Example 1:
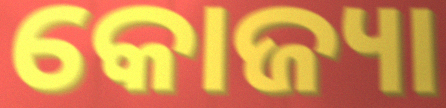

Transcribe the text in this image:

କୋଜ୍ୟା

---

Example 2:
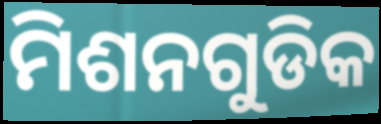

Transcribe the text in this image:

ମିଶନଗୁଡିକ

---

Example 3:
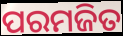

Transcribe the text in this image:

ପରମଜିତ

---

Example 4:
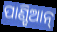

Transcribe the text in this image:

ପାଣ୍ଡିଆନ୍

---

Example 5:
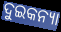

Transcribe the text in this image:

ଦୁଇକନ୍ୟା